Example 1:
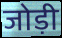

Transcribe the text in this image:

जोड़ी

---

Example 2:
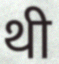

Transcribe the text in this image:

थी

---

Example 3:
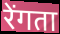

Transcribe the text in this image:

रेंगता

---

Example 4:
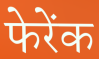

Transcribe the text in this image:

फेरेंक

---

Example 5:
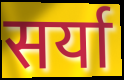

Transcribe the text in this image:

सर्या